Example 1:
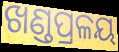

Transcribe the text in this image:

ଖଣ୍ଡପ୍ରଳୟ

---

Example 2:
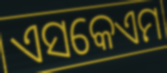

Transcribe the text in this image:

ଏସକେଏମ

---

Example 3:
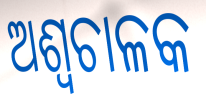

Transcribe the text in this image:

ଅଶ୍ୱଚାଳକ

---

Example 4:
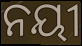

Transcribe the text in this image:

ନୟୀ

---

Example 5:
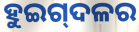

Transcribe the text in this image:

ହୁଇଗ୍‌ଦଳର